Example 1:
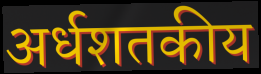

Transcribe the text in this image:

अर्धशतकीय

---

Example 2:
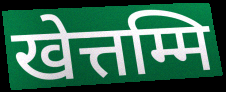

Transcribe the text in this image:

खेत्तम्मि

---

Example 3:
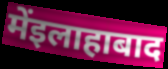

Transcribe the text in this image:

मेंइलाहाबाद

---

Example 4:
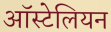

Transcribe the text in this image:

ऑस्टेलियन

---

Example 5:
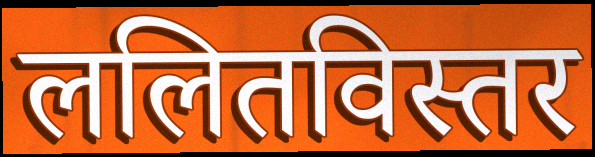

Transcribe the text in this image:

ललितविस्तर